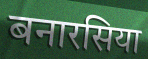
बनारसिया